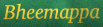
Bheemappa